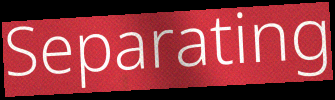
Separating